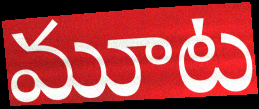
మూట